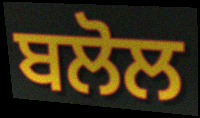
ਬਲੋਲ